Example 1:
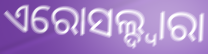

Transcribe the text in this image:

ଏରୋସଲ୍ଦ୍ୱାରା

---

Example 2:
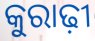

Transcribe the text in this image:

କୁରାଢ଼ୀ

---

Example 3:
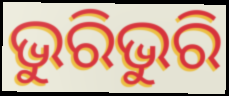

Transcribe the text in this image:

ଭୁରିଭୁରି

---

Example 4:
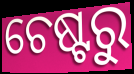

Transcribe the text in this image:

ଚେଷ୍ଟରୁ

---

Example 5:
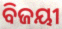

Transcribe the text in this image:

ବିଜୟୀ